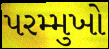
પરમ્મુખો